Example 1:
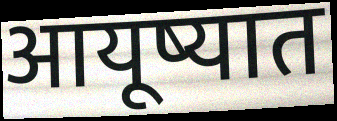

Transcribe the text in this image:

आयूष्यात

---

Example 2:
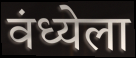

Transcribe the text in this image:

वंध्येला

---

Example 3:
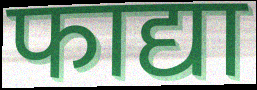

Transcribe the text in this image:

फाद्या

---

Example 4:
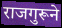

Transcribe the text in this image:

राजगुरूने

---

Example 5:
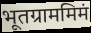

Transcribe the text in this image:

भूतग्राममिमं